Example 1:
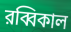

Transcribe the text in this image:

রব্বিকাল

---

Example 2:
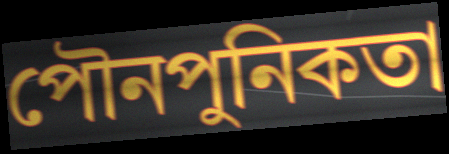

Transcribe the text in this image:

পৌনপুনিকতা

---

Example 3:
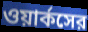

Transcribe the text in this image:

ওয়ার্কসের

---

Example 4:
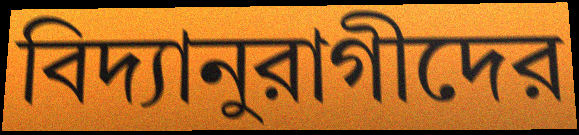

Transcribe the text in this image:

বিদ্যানুরাগীদের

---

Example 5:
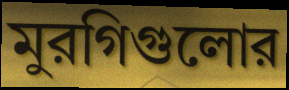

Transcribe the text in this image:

মুরগিগুলোর